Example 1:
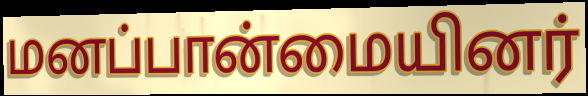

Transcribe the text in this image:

மனப்பான்மையினர்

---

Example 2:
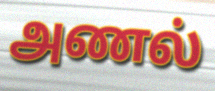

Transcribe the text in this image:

அணல்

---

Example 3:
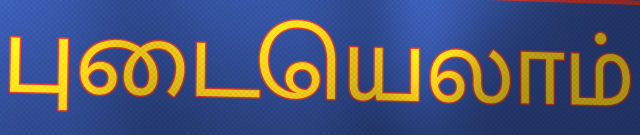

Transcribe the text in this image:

புடையெலாம்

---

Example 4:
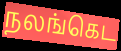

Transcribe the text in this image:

நலங்கெட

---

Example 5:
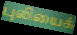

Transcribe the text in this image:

புலியைக்